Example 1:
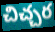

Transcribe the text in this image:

చిచ్చర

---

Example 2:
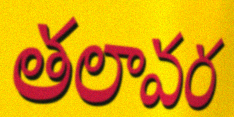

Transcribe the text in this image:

తలావర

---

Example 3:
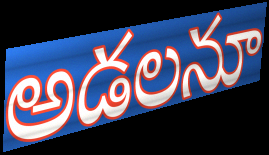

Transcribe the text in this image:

అడలనూ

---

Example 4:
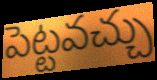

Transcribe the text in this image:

పెట్టవచ్చు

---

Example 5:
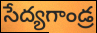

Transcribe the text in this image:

సేద్యగాండ్ర